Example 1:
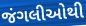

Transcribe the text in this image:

જંગલીઓથી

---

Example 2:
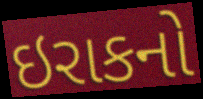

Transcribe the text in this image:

ઇરાકનો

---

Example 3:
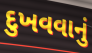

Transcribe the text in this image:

દુખવવાનું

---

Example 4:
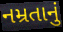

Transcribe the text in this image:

નમ્રતાનું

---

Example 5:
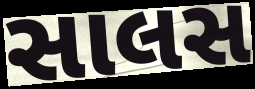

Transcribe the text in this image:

સાલસ